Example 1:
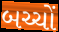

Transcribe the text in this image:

બચ્ચોં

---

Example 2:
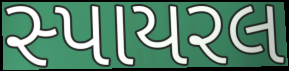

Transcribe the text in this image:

સ્પાયરલ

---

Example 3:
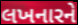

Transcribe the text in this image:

લખનારને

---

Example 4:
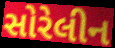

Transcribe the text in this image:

સોરેલીન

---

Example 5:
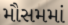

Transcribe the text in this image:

મૌસમમાં